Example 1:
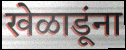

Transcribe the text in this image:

खेळाडूंना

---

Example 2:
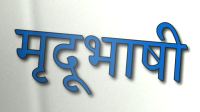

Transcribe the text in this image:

मृदूभाषी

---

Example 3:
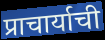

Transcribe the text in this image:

प्राचार्याची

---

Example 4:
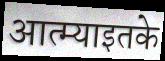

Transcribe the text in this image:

आत्म्याइतके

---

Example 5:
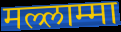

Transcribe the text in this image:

मल्लाम्मा